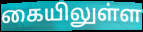
கையிலுள்ள